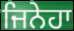
ਜਿਨੇਹਾ